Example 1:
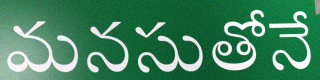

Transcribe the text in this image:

మనసుతోనే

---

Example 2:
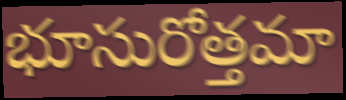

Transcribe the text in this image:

భూసురోత్తమా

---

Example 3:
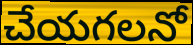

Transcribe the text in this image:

చేయగలనో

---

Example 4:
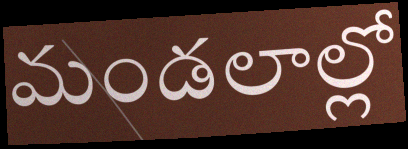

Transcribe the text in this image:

మండలాల్లో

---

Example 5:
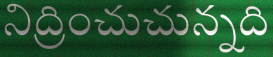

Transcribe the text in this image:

నిద్రించుచున్నది